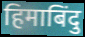
हिमाबिंदु